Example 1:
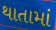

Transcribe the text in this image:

થાતામાં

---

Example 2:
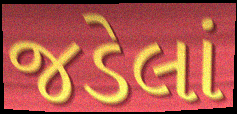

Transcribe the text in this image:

જડેલાં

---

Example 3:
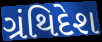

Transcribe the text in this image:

ગ્રંથિદેશ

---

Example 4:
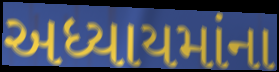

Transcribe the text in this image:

અધ્યાયમાંના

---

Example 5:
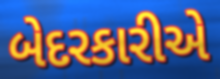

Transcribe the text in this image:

બેદરકારીએ